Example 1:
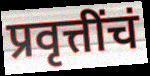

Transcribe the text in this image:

प्रवृत्तींचं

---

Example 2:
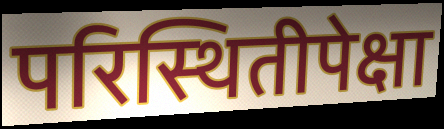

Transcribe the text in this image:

परिस्थितीपेक्षा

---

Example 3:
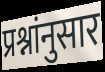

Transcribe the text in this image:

प्रश्नांनुसार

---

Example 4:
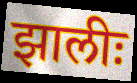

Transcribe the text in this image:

झालीः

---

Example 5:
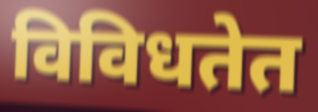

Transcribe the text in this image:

विविधतेत